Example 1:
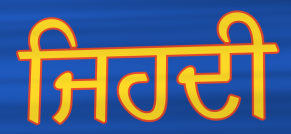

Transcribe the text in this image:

ਜਿਹਦੀ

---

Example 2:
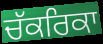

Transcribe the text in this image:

ਚੱਕਰਿਕਾ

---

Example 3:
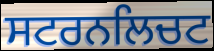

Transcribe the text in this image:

ਸਟਰਨਲਿਚਟ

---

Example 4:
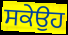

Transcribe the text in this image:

ਸਕੇਉਹ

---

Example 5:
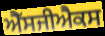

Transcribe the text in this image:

ਐੱਸਜੀਐਕਸ